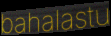
bahalastu